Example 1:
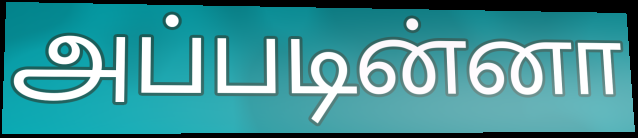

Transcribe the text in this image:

அப்படின்னா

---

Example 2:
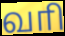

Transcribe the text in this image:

வரி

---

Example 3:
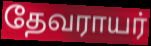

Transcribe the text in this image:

தேவராயர்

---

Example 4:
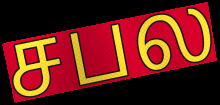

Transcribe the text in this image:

சபல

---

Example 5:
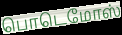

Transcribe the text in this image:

பொடெமோஸ்